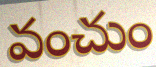
వంచుం